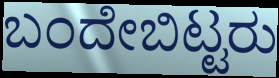
ಬಂದೇಬಿಟ್ಟರು